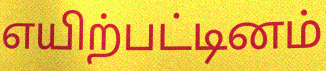
எயிற்பட்டினம்